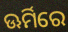
ଊର୍ମିରେ